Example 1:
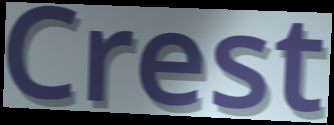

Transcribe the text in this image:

Crest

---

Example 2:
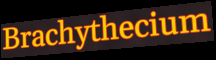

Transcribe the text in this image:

Brachythecium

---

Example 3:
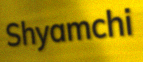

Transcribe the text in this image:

Shyamchi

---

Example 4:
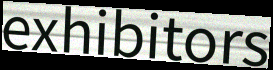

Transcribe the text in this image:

exhibitors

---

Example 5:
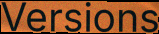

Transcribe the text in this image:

Versions